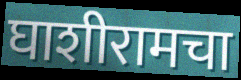
घाशीरामचा